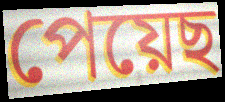
পেয়েছ